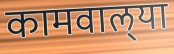
कामवाल्या